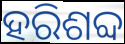
ହରିଶବ୍ଦ